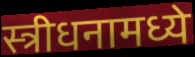
स्त्रीधनामध्ये